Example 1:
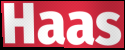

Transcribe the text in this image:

Haas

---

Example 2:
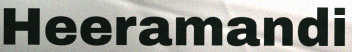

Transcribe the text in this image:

Heeramandi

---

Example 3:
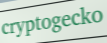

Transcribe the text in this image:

cryptogecko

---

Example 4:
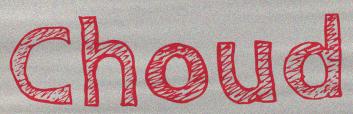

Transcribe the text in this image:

Choud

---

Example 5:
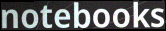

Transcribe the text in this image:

notebooks